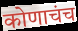
कोणाचंच